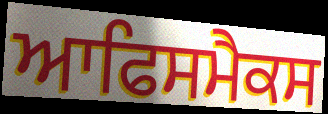
ਆਫਿਸਮੈਕਸ